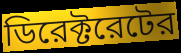
ডিরেক্টরেটের